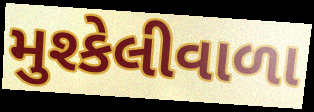
મુશ્કેલીવાળા